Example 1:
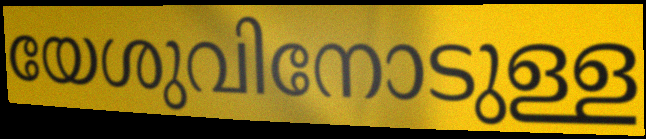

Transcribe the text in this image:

യേശുവിനോടുള്ള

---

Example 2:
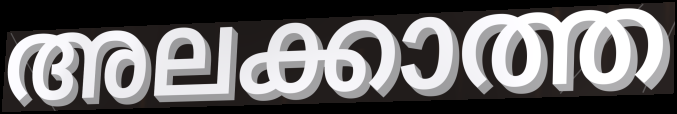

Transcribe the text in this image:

അലക്കാത്ത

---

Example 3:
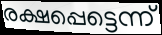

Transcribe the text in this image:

രക്ഷപ്പെട്ടെന്ന്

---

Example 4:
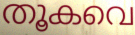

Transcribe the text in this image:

തൂകവെ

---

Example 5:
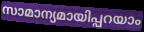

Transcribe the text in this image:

സാമാന്യമായിപ്പറയാം